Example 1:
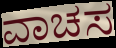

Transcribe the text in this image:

ವಾಚಸ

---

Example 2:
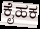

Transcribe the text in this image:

ಕೈಹಕ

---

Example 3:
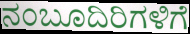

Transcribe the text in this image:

ನಂಬೂದಿರಿಗಳಿಗೆ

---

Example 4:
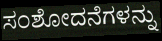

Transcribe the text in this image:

ಸಂಶೋದನೆಗಳನ್ನು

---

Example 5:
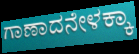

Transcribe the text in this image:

ಗಾಣಾದನೇಳಕ್ಕಾ